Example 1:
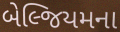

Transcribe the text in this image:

બેલ્જિયમના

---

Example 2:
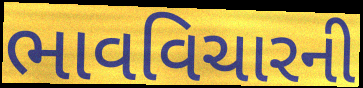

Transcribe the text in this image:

ભાવવિચારની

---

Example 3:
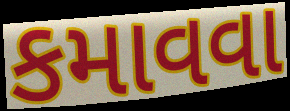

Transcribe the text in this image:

કમાવવા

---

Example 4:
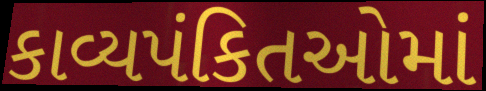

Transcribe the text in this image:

કાવ્યપંકિતઓમાં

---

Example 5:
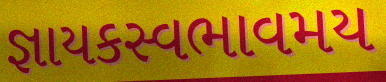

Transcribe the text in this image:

જ્ઞાયકસ્વભાવમય